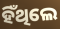
ହିଁଥିଲେ